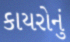
કાયરોનું